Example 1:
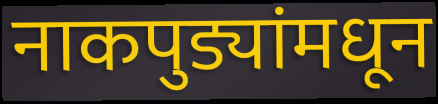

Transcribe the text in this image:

नाकपुड्यांमधून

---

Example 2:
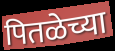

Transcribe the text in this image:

पितळेच्या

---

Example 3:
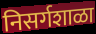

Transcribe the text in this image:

निसर्गशाळा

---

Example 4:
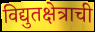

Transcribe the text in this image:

विद्युतक्षेत्राची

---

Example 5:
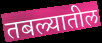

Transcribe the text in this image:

तबल्यातील